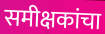
समीक्षकांचा